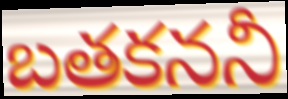
బతకననీ